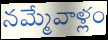
నమ్మేవాళ్లం